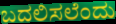
ಬದಲಿಸಲೆಂದು